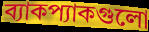
ব্যাকপ্যাকগুলো